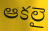
ఆకలై